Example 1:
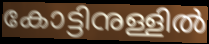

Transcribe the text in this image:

കോട്ടിനുള്ളിൽ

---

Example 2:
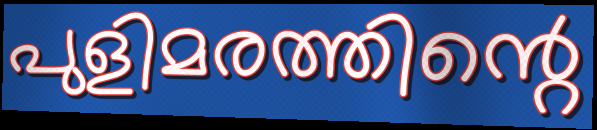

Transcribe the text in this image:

പുളിമരത്തിന്റെ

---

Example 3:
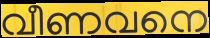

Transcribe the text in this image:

വീണവനെ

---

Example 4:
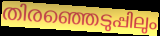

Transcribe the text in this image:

തിരഞ്ഞെടുപ്പിലും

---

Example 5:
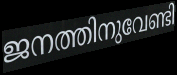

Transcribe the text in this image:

ജനത്തിനുവേണ്ടി